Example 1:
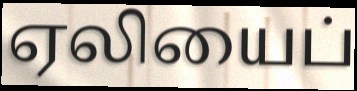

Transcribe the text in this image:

ஏலியைப்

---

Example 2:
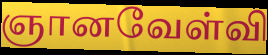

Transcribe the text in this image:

ஞானவேள்வி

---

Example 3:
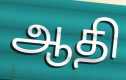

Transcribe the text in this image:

ஆதி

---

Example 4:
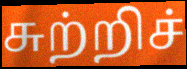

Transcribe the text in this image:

சுற்றிச்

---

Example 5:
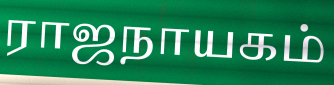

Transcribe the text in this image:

ராஜநாயகம்